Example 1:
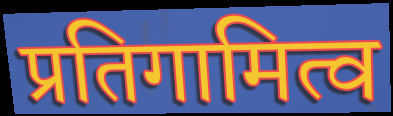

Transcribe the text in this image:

प्रतिगामित्व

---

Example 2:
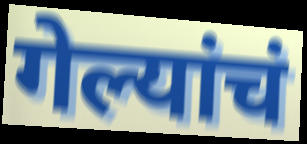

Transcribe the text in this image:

गेल्यांचं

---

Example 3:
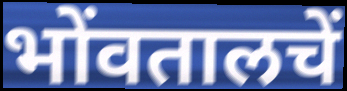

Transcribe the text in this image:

भोंवतालचें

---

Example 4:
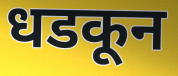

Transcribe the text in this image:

धडकून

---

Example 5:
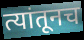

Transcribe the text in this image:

त्यांतूनच